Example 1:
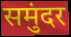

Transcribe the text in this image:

समुंदर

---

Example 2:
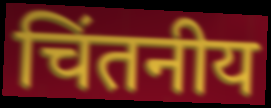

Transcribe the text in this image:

चिंतनीय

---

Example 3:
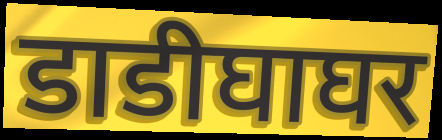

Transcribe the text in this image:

डाडीघाघर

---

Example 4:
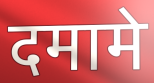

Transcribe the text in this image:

दमामे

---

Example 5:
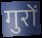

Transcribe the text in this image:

गुरों